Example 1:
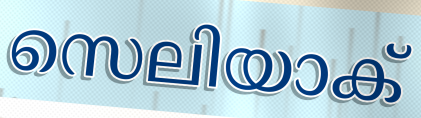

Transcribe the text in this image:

സെലിയാക്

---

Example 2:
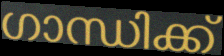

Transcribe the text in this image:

ഗാന്ധിക്ക്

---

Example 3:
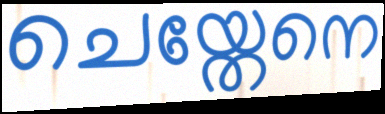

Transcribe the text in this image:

ചെയ്തേനെ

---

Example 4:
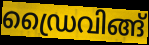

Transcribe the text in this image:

ഡ്രൈവിങ്ങ്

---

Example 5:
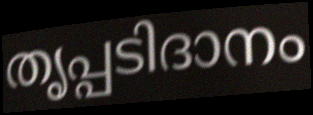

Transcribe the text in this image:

തൃപ്പടിദാനം